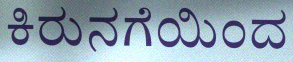
ಕಿರುನಗೆಯಿಂದ